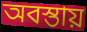
অবস্তায়